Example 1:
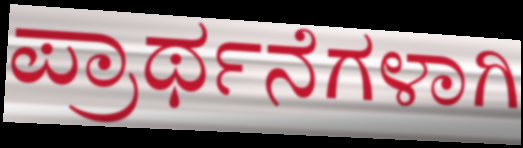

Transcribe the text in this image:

ಪ್ರಾರ್ಥನೆಗಳಾಗಿ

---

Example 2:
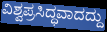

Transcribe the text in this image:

ವಿಶ್ವಪ್ರಸಿದ್ಧವಾದದ್ದು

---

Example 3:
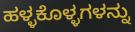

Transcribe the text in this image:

ಹಳ್ಳಕೊಳ್ಳಗಳನ್ನು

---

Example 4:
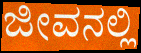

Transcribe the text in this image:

ಜೀವನಲ್ಲಿ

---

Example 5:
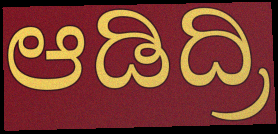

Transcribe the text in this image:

ಆಡಿದ್ರಿ